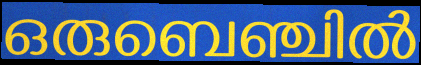
ഒരുബെഞ്ചിൽ